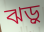
ঝড়ু